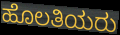
ಹೊಲತಿಯರು